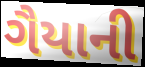
ગૈયાની